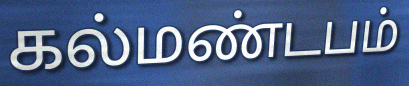
கல்மண்டபம்